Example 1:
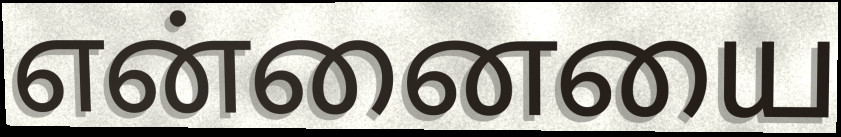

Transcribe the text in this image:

என்னையை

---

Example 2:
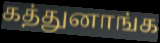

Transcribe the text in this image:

கத்துனாங்க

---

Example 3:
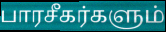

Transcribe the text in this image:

பாரசீகர்களும்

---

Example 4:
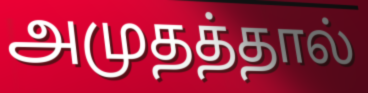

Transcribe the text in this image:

அமுதத்தால்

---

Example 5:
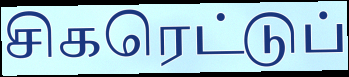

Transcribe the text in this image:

சிகரெட்டுப்